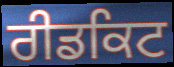
ਰੀਡਕਿਟ